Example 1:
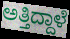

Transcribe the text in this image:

ಅತ್ತಿದ್ದಾಳೆ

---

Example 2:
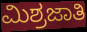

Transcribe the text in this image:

ಮಿಶ್ರಜಾತಿ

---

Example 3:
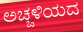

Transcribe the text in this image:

ಅಚ್ಚಳಿಯದ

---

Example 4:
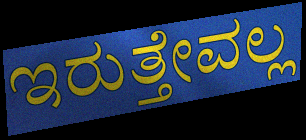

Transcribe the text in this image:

ಇರುತ್ತೇವಲ್ಲ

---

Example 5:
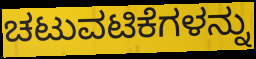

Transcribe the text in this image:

ಚಟುವಟಿಕೆಗಳನ್ನು